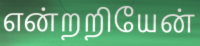
என்றறியேன்